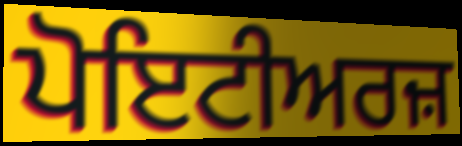
ਪੋਇਟੀਅਰਜ਼